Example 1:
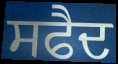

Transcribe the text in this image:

ਸਫੈਦ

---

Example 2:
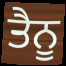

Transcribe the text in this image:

ਤੈਨੂ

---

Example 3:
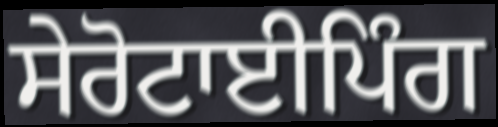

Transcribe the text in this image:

ਸੇਰੋਟਾਈਪਿੰਗ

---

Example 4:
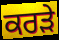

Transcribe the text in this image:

ਕਰੜੇ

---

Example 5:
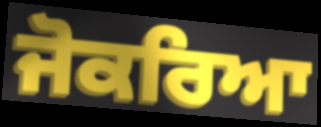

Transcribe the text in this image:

ਜੋਕਰਿਆ